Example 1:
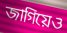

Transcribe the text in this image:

জাগিয়েও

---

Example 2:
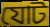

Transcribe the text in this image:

যোট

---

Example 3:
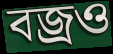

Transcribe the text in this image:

বজ্রও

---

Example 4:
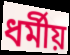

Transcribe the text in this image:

ধর্মীয়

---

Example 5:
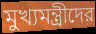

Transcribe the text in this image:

মুখ্যমন্ত্রীদের